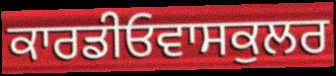
ਕਾਰਡੀਓਵਾਸਕੁਲਰ